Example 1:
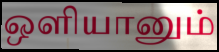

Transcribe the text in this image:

ஒளியானும்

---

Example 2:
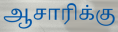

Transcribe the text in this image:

ஆசாரிக்கு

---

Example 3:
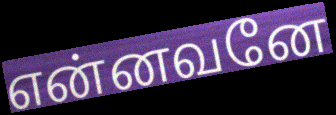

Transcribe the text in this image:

என்னவனே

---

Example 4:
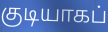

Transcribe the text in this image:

குடியாகப்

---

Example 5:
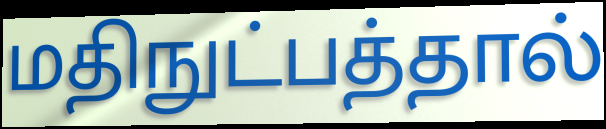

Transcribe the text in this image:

மதிநுட்பத்தால்